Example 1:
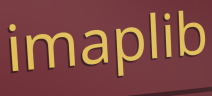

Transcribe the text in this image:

imaplib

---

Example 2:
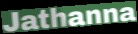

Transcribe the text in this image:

Jathanna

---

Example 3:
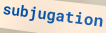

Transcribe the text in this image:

subjugation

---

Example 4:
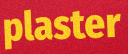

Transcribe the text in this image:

plaster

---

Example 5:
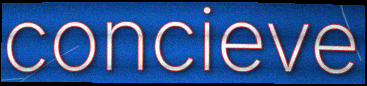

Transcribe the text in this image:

concieve